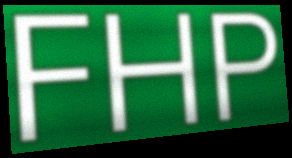
FHP